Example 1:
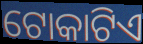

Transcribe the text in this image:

ଟୋକାଟିଏ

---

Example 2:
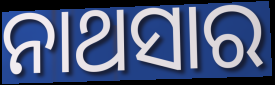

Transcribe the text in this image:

ନାଥସାର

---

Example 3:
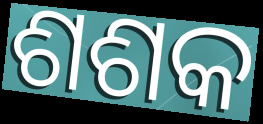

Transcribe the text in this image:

ଶଶକ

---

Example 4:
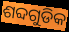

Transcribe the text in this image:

ଶବ୍ଦଗୁଡିକ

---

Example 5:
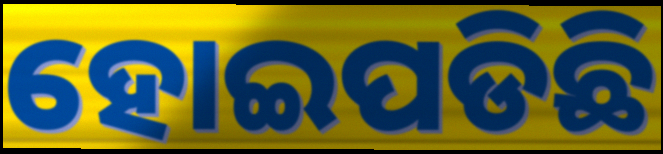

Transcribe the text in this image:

ହୋଇପଡିଛି